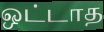
ஒட்டாத